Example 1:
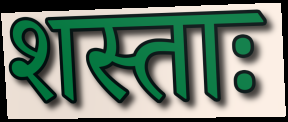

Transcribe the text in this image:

शस्ताः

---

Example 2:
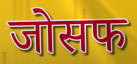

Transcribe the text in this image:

जोसफ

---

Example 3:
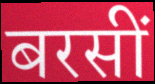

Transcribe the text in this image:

बरसीं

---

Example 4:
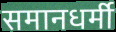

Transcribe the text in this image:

समानधर्मी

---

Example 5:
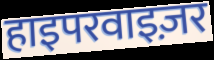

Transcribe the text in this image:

हाइपरवाइज़र